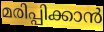
മരിപ്പിക്കാൻ